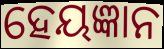
ହେୟଜ୍ଞାନ